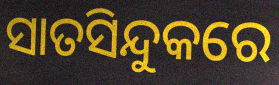
ସାତସିନ୍ଦୁକରେ